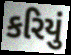
કરિયું